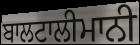
ਬਾਲਟਾਲੀਮਾਨੀ